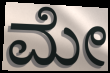
ಮೇ